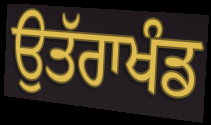
ਉਤੱਰਾਖੰਡ